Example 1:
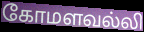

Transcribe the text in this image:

கோமளவல்லி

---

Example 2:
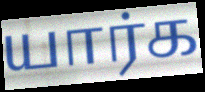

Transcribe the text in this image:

யார்க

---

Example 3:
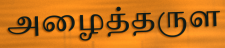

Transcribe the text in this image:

அழைத்தருள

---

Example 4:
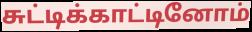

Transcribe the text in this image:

சுட்டிக்காட்டினோம்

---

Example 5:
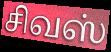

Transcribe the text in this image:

சிவஸ்